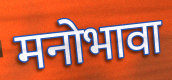
मनोभावा